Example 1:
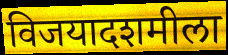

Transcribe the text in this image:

विजयादशमीला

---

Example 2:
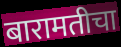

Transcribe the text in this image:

बारामतीचा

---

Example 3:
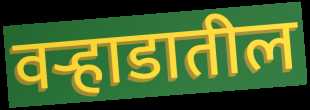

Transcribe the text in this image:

वर्‍हाडातील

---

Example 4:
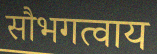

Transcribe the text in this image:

सौभगत्वाय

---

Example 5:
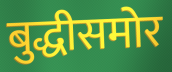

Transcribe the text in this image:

बुद्धीसमोर